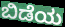
ಬಿಡೆಯ